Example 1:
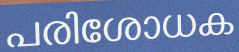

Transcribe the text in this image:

പരിശോധക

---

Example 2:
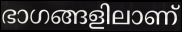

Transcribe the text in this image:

ഭാഗങ്ങളിലാണ്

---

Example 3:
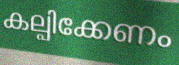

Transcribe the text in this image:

കല്പിക്കേണം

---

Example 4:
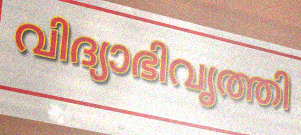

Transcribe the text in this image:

വിദ്യാഭിവൃത്തി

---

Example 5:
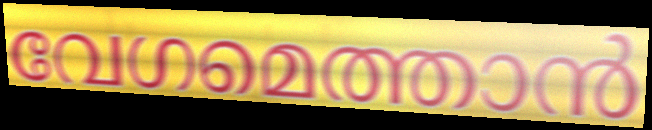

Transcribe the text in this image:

വേഗമെത്താൻ